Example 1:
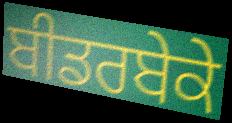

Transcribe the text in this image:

ਬੀਡਰਬੇਕੇ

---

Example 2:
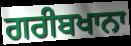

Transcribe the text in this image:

ਗਰੀਬਖਾਨਾ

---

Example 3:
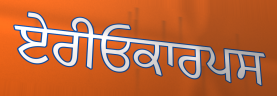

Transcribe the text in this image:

ਏਰੀਓਕਾਰਪਸ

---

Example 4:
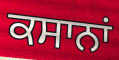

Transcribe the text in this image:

ਕਸਾਨਾਂ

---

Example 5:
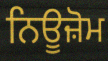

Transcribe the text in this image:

ਨਿਊਜ਼ੋਮ